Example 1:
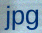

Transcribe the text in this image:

jpg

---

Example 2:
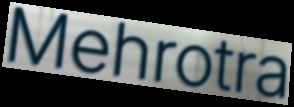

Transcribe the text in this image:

Mehrotra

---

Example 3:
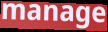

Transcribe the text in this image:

manage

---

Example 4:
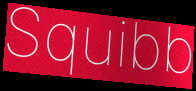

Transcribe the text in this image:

Squibb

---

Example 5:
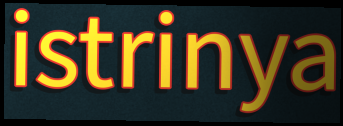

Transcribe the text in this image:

istrinya